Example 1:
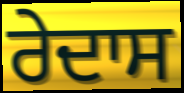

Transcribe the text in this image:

ਰੇਦਾਸ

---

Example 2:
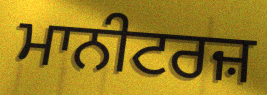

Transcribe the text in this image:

ਮਾਨੀਟਰਜ਼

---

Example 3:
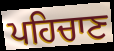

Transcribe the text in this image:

ਪਹਿਚਾਣ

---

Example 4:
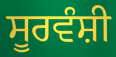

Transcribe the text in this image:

ਸੂਰਵੰਸ਼ੀ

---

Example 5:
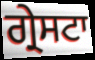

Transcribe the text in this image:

ਗ੍ਰੇਸਟਾ